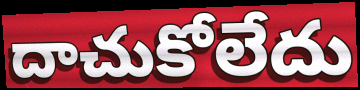
దాచుకోలేదు